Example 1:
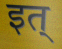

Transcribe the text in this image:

इत्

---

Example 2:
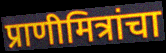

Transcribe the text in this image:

प्राणीमित्रांचा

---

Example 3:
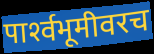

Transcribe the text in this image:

पार्श्वभूमीवरच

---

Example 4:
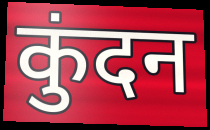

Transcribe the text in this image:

कुंदन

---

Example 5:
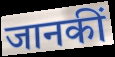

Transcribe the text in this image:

जानकीं